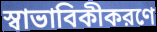
স্বাভাবিকীকরণে